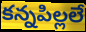
కన్నపిల్లలే